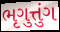
ભૃગુત્તુંગ